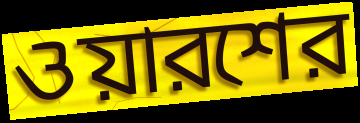
ওয়ারশের